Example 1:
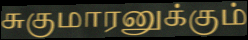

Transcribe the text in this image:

சுகுமாரனுக்கும்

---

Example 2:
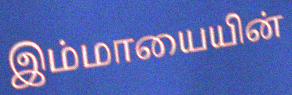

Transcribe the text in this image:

இம்மாயையின்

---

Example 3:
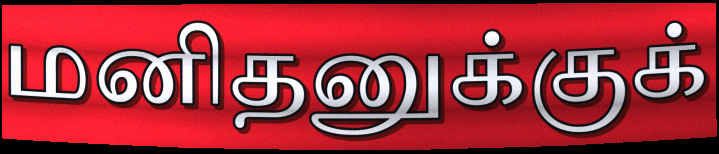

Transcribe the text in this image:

மனிதனுக்குக்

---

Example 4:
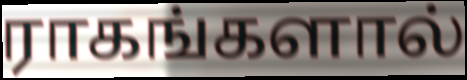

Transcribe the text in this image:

ராகங்களால்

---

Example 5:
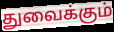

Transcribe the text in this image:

துவைக்கும்